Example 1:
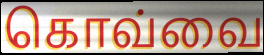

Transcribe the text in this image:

கொவ்வை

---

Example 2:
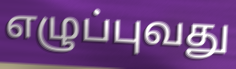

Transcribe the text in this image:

எழுப்புவது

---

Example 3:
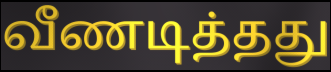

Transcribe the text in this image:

வீணடித்தது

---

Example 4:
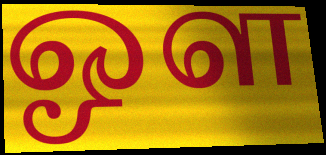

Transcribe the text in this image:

ஓள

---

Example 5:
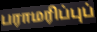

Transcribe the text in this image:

பராமரிப்புப்